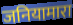
जनियामारा